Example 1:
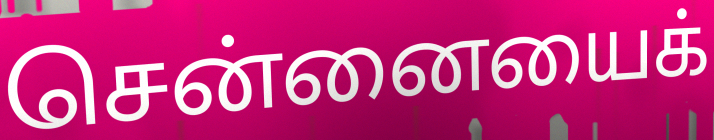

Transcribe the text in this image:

சென்னையைக்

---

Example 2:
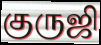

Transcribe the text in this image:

குருஜி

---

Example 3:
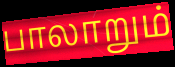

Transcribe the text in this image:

பாலாறும்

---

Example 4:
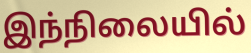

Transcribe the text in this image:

இந்நிலையில்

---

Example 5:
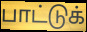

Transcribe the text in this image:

பாட்டுக்